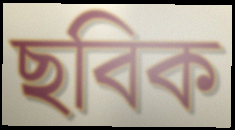
ছবিক